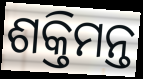
ଶକ୍ତିମନ୍ତ